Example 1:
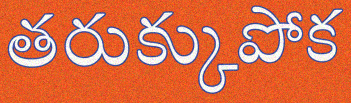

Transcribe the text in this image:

తరుక్కుపోక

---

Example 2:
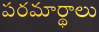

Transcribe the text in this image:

పరమార్థాలు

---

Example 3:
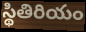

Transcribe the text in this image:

స్థితిరియం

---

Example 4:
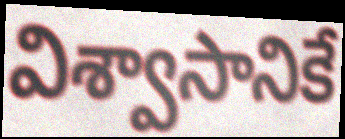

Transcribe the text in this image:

విశ్వాసానికే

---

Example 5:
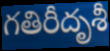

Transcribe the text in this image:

గతిరీదృశీ